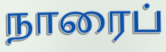
நாரைப்